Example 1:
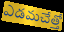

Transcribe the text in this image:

ఎడమచేత్తో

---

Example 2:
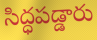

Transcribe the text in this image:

సిద్ధపడ్డారు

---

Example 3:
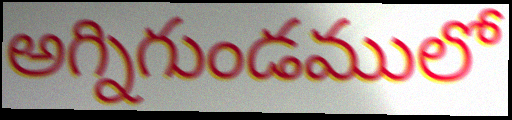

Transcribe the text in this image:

అగ్నిగుండములో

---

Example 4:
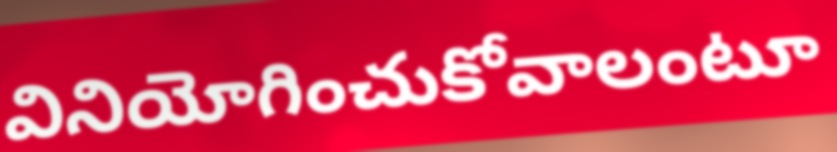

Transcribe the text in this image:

వినియోగించుకోవాలంటూ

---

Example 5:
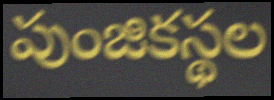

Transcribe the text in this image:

పుంజికస్థల